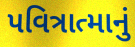
પવિત્રાત્માનું